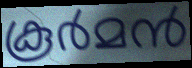
കൂർമൻ